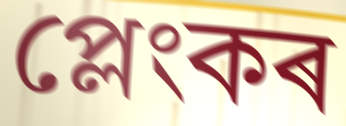
প্লেংকৰ